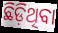
ଛିଡ଼ିଥିବା